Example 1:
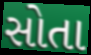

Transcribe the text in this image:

સોતા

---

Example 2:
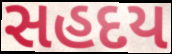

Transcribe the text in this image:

સહદય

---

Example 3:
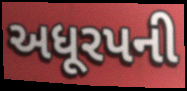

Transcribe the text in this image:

અધૂરપની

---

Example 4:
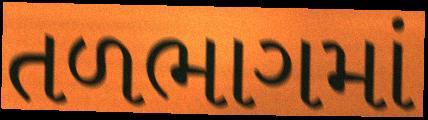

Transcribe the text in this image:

તળભાગમાં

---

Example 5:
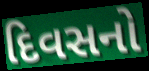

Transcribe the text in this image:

દિવસનો